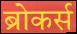
ब्रोकर्स